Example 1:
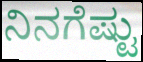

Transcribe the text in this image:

ನಿನಗೆಷ್ಟು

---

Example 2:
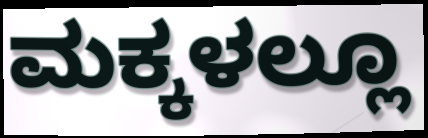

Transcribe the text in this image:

ಮಕ್ಕಳಲ್ಲೂ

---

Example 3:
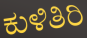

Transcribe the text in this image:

ಕುಳಿತಿರಿ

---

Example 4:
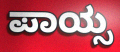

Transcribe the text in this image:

ಪಾಯ್ಸ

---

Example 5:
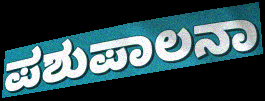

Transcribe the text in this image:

ಪಶುಪಾಲನಾ